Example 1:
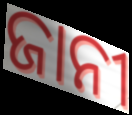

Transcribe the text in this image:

ଜାନୀ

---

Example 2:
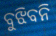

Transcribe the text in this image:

ବୁଝିବନି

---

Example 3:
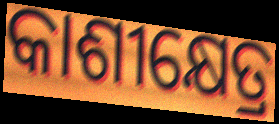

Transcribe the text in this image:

କାଶୀକ୍ଷେତ୍ର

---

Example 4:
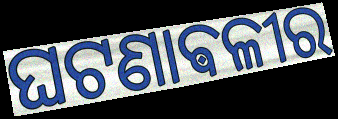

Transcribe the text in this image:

ଘଟଣାଵଳୀର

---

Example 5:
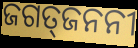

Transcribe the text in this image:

ଜଗତ୍‍ଜନନୀ